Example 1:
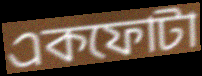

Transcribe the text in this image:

একফোটা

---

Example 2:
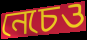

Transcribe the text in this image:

নেচেও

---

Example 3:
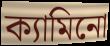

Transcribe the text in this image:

ক্যামিনো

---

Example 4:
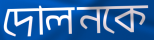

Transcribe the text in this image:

দোলনকে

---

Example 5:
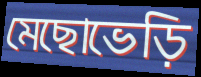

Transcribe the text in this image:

মেছোভেড়ি